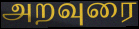
அறவுரை